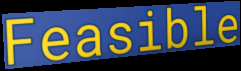
Feasible